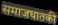
समाजघातकी